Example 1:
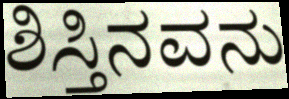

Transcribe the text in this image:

ಶಿಸ್ತಿನವನು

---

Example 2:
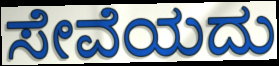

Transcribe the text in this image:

ಸೇವೆಯದು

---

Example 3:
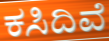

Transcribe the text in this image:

ಕಸಿದಿವೆ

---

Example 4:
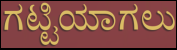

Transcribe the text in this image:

ಗಟ್ಟಿಯಾಗಲು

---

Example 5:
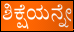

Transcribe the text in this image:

ಶಿಕ್ಷೆಯನ್ನೇ